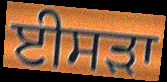
ਈਸੜਾ